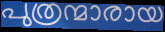
പുത്രന്മാരായ